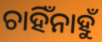
ଚାହିଁନାହୁଁ